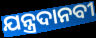
ଯନ୍ତ୍ରଦାନବୀ